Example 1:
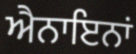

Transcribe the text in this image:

ਐਨਾਇਨਾਂ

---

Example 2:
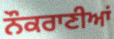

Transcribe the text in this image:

ਨੌਕਰਾਣੀਆਂ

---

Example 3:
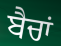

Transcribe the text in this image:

ਬੈਚਾਂ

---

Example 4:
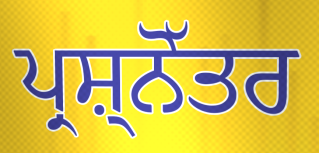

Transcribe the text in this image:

ਪ੍ਰਸ਼੍ਨੋੱਤਰ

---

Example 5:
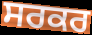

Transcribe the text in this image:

ਸਰਕਰ